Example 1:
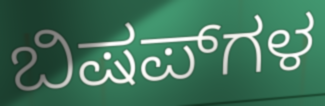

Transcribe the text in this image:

ಬಿಷಪ್‌ಗಳ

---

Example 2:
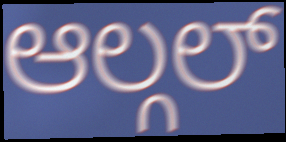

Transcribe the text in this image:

ಆಲ್ಗಲ್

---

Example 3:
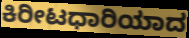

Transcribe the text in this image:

ಕಿರೀಟಧಾರಿಯಾದ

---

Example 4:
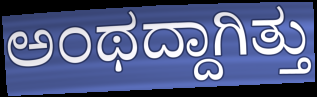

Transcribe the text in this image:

ಅಂಥದ್ದಾಗಿತ್ತು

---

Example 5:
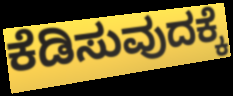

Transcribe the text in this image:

ಕೆಡಿಸುವುದಕ್ಕೆ